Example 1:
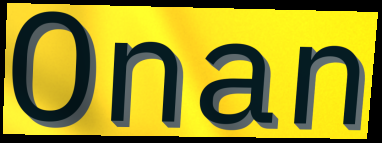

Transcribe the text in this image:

Onan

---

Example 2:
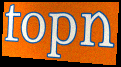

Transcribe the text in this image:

topn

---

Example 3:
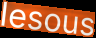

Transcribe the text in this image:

Iesous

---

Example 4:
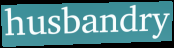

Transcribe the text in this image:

husbandry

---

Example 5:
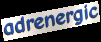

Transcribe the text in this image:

adrenergic